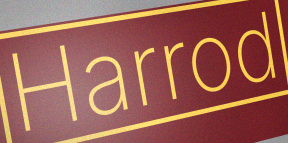
Harrod